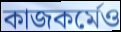
কাজকর্মেও